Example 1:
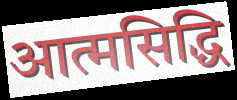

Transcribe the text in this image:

आत्मसिद्धि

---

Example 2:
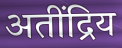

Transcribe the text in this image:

अतींद्रिय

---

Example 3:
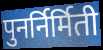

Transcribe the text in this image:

पुनर्निर्मिती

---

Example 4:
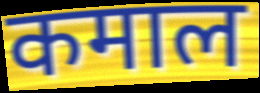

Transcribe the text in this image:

कमाल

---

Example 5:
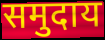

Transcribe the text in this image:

समुदाय